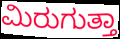
ಮಿರುಗುತ್ತಾ